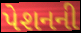
પેશનની